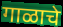
गाळाचे